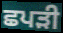
ਛਪੜੀ